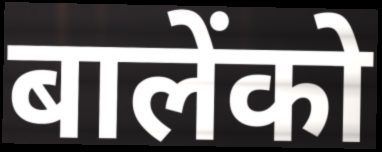
बालेंको